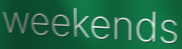
weekends